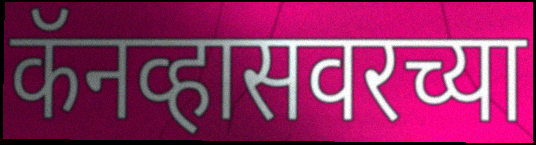
कॅनव्हासवरच्या